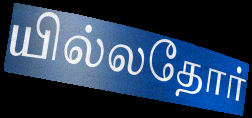
யில்லதோர்